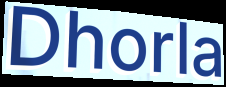
Dhorla